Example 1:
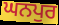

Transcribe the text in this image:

ਘਨਪੁਰ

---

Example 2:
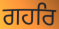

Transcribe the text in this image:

ਗਹਰਿ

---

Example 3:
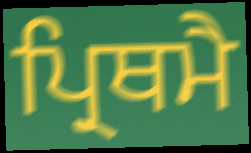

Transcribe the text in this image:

ਪ੍ਰਿਥਮੈ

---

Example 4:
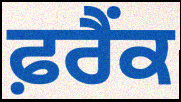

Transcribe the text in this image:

ਫ਼ਰੈਂਕ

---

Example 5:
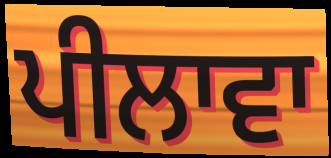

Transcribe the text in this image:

ਪੀਲਾਵਾ